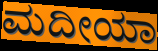
ಮದೀಯಾ